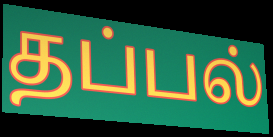
தப்பல்